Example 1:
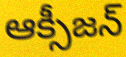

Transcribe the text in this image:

ఆక్సీజన్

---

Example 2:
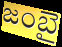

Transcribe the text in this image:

జంబై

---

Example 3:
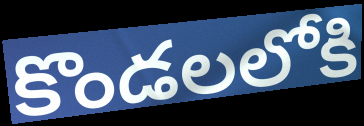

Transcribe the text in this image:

కొండలలోకి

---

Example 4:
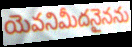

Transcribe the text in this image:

యెవనిమీదనైనను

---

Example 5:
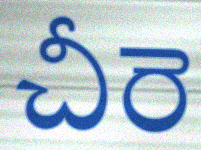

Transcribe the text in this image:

చీరె